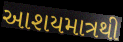
આશયમાત્રથી